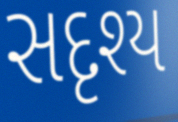
સદૃશ્ય